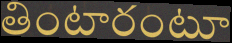
తింటారంటూ